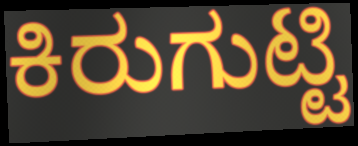
ಕಿರುಗುಟ್ಟಿ